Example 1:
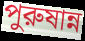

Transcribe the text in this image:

পুরুষান্ন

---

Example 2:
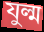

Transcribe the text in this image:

যুল্ম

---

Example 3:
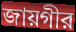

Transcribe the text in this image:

জায়গীর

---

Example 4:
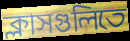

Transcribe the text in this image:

ক্লাসগুলিতে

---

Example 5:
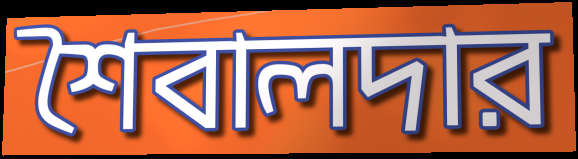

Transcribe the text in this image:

শৈবালদার